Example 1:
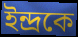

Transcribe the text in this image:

ইন্দ্রকে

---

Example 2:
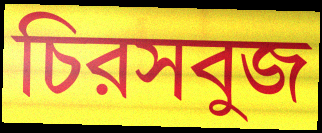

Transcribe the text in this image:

চিরসবুজ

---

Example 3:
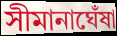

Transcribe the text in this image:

সীমানাঘেঁষা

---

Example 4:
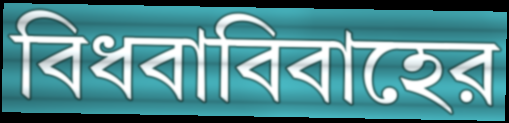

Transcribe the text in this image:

বিধবাবিবাহের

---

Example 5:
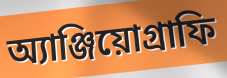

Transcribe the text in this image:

অ্যাঞ্জিয়োগ্রাফি